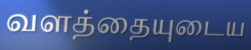
வளத்தையுடைய